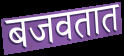
बजवतात